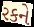
રકને